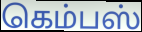
கெம்பஸ்